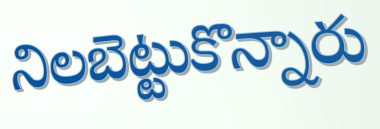
నిలబెట్టుకొన్నారు